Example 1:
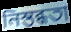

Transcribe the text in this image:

নিস্তব্ধতা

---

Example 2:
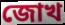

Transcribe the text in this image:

জোখ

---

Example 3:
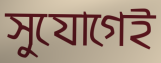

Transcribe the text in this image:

সুযোগেই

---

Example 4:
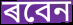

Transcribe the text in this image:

ৰবেন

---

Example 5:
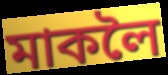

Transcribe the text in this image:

মাকলৈ